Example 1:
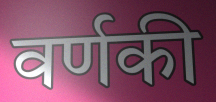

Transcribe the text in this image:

वर्णकी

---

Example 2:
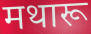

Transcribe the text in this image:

मथारू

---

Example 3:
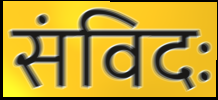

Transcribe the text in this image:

संविदः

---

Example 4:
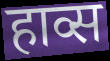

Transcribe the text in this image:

हाव्स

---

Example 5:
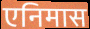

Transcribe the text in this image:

एनिमास